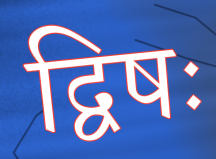
द्विषः